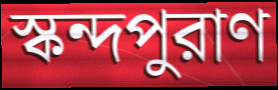
স্কন্দপুরাণ